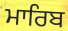
ਮਾਰਿਬ